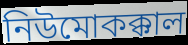
নিউমোকক্কাল